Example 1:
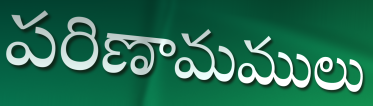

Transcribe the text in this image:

పరిణామములు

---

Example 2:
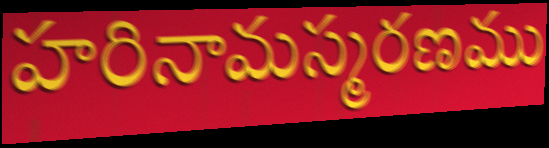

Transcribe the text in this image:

హరినామస్మరణము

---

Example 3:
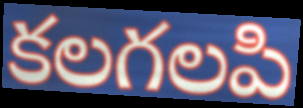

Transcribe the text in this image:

కలగలపి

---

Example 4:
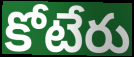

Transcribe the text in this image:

కోటేరు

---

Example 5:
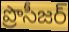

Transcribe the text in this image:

ప్రొసీజర్